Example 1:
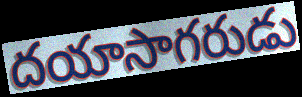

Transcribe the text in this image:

దయాసాగరుడు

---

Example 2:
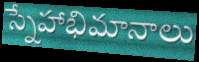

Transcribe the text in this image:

స్నేహాభిమానాలు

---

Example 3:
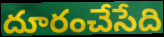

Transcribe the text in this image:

దూరంచేసేది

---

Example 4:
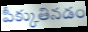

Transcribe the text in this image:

పీక్కుతినడం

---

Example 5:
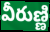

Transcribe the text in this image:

వీరుణ్ణి